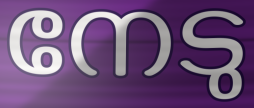
നേടു